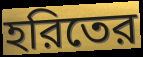
হরিতের